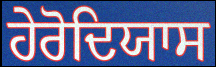
ਹੇਰੋਦਿਯਾਸ